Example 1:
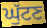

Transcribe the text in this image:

ਘੁੱਟਣ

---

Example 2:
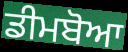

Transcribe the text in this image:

ਡੀਮਬੋਆ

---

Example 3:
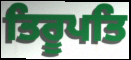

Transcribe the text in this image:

ਤਿਰੂਪਤਿ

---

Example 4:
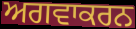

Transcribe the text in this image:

ਅਗਵਾਕਰਨ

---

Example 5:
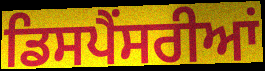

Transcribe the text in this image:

ਡਿਸਪੈਂਸਰੀਆਂ